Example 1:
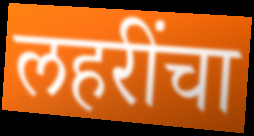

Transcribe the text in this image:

लहरींचा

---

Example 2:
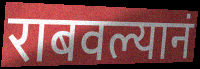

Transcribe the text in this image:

राबवल्यानं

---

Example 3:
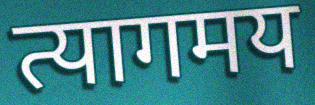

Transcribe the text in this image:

त्यागमय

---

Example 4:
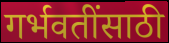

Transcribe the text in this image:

गर्भवतींसाठी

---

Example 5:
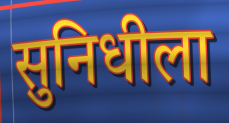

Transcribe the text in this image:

सुनिधीला